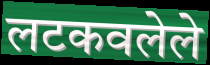
लटकवलेले